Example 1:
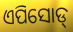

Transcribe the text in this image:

ଏପିସୋଡ୍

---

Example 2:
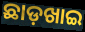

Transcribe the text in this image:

ଛାଡ଼ଖାଇ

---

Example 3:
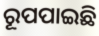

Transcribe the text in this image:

ରୂପପାଇଛି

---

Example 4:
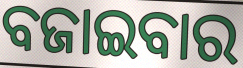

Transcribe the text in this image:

ବଜାଇବାର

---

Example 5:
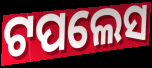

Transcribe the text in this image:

ଟପଲେସ